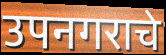
उपनगराचे